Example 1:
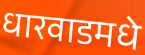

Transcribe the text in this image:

धारवाडमधे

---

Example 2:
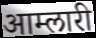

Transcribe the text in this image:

आम्लारी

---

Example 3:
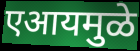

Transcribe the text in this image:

एआयमुळे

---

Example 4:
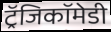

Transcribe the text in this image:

ट्रॅजिकॉमेडी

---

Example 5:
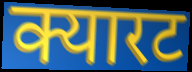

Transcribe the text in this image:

क्यारट